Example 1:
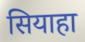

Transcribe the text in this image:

सियाहा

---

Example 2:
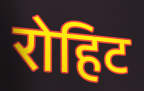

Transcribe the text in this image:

रोहिट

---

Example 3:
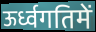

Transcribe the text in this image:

ऊर्ध्वगतिमें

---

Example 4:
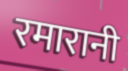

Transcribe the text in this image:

रमारानी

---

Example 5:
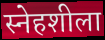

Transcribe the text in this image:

स्नेहशीला